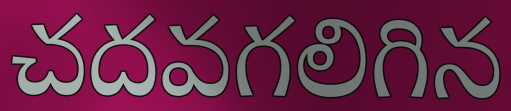
చదవగలిగిన